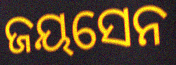
ଜୟସେନ